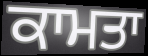
ਕਾਮਤਾ